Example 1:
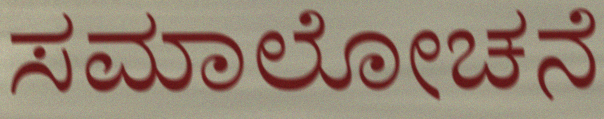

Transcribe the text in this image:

ಸಮಾಲೋಚನೆ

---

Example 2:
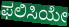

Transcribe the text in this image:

ಫಲಿಸಿಯೇ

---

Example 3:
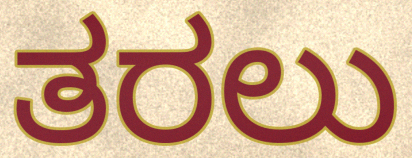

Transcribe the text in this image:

ತರಲು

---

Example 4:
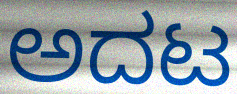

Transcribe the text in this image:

ಅದಟ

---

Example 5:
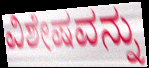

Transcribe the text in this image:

ವಿಶೇಷವನ್ನು